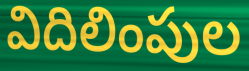
విదిలింపుల